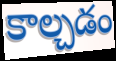
కాల్చడం